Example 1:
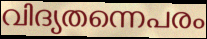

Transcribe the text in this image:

വിദ്യതന്നെപരം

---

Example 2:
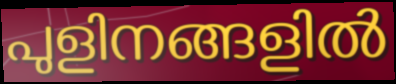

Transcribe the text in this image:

പുളിനങ്ങളിൽ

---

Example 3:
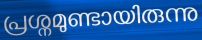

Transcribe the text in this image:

പ്രശ്നമുണ്ടായിരുന്നു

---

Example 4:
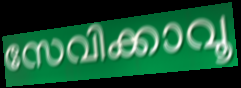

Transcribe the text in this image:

സേവിക്കാവൂ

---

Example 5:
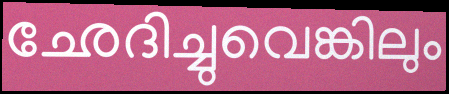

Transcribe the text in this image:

ഛേദിച്ചുവെങ്കിലും